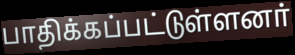
பாதிக்கப்பட்டுள்ளனர்